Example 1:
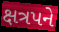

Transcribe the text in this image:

ક્ષત્રપને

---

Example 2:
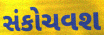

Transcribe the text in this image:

સંકોચવશ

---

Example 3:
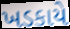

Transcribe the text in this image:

ખડકાયે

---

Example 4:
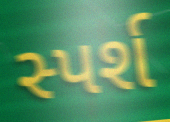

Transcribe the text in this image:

સ્પર્શ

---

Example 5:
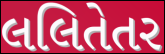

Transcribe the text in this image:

લલિતેતર